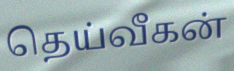
தெய்வீகன்